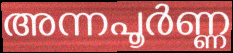
അന്നപൂർണ്ണ